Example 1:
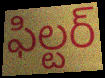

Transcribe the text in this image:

ఫిల్టర్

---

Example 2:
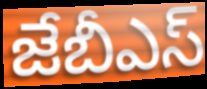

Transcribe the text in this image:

జేబీఎస్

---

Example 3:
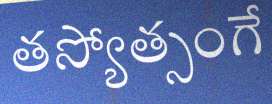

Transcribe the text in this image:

తస్యోత్సంగే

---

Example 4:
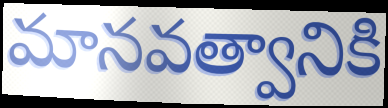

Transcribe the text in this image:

మానవత్వానికి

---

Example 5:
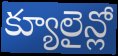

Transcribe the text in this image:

క్యూలైన్లో